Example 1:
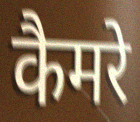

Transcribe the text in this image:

कैमरे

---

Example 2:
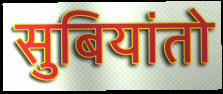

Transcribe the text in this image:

सुबियांतो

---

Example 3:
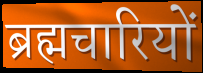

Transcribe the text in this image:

ब्रह्मचारियों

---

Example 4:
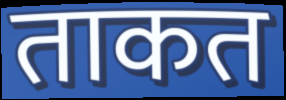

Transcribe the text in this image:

ताकत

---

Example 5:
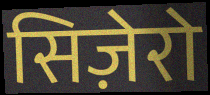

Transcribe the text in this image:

सिज़ेरो